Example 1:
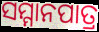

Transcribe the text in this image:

ସମ୍ମାନପାତ୍ର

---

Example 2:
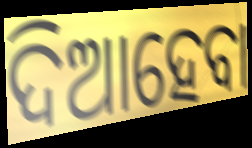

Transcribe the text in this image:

ଦିଆହେବା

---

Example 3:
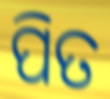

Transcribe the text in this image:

ପିତ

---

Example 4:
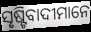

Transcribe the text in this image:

ସୃଷ୍ଟିବାଦୀମାନେ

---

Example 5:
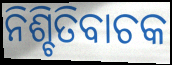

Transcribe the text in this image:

ନିଶ୍ଚିତିବାଚକ